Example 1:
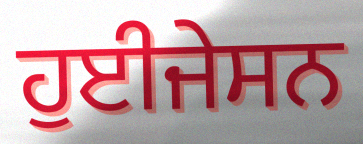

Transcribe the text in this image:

ਹੁਈਜੇਸਨ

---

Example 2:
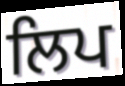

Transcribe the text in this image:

ਲਿਪ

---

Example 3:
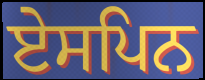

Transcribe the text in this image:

ਏਸਪਿਨ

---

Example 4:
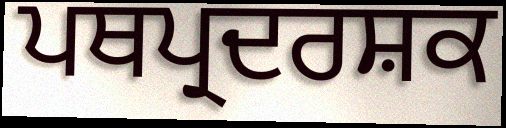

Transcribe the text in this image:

ਪਥਪ੍ਰਦਰਸ਼ਕ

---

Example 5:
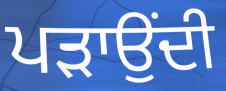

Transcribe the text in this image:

ਪੜਾਉਂਦੀ